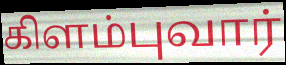
கிளம்புவார்